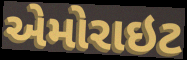
એમોરાઇટ